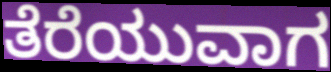
ತೆರೆಯುವಾಗ